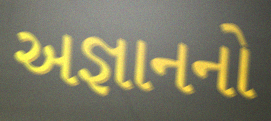
અજ્ઞાનનો